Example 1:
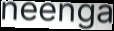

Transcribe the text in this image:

neenga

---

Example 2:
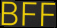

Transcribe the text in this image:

BFF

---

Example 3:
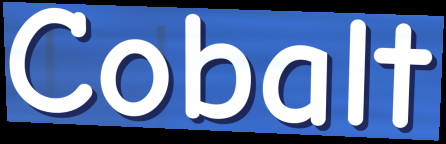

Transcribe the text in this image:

Cobalt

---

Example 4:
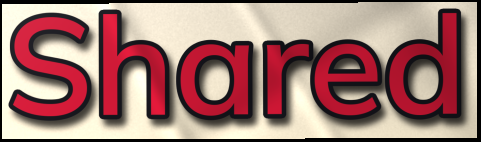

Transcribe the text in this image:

Shared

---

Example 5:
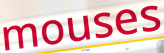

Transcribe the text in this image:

mouses